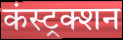
कंस्ट्रक्शन